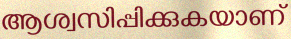
ആശ്വസിപ്പിക്കുകയാണ്